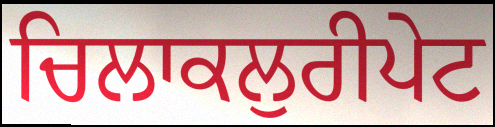
ਚਿਲਾਕਲੁਰੀਪੇਟ